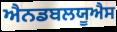
ਐਨਡਬਲਯੂਐਸ